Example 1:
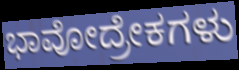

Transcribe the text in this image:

ಭಾವೋದ್ರೇಕಗಳು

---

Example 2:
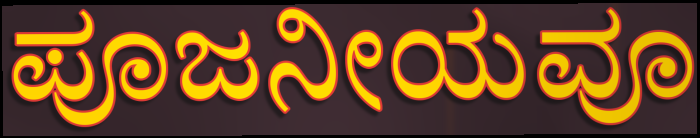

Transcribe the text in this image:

ಪೂಜನೀಯವೂ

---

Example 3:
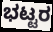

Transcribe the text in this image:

ಭಟ್ಟರ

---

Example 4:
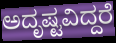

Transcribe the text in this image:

ಅದೃಷ್ಟವಿದ್ದರೆ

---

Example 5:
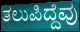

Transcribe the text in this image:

ತಲುಪಿದ್ದೆವು